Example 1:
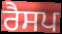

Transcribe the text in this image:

ਰੈਸਪ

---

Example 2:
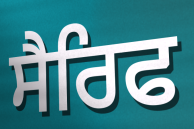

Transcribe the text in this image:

ਸੈਰਿਫ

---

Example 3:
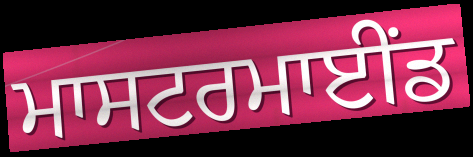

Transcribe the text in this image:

ਮਾਸਟਰਮਾਈਂਡ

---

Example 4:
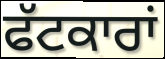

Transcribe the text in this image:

ਫੱਟਕਾਰਾਂ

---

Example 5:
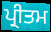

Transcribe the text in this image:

ਪ੍ਰੀਤਮ